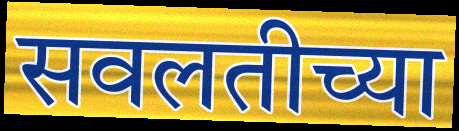
सवलतीच्या